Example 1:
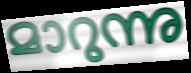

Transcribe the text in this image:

മാറുന്നു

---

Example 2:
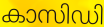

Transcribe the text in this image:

കാസിഡി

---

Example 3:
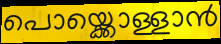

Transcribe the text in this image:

പൊയ്ക്കൊള്ളാൻ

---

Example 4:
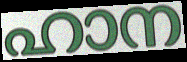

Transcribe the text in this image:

ഹാന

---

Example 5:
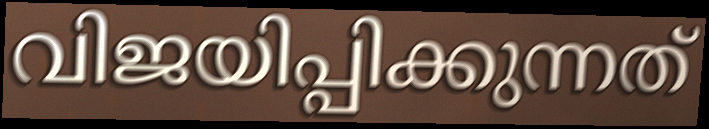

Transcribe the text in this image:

വിജയിപ്പിക്കുന്നത്